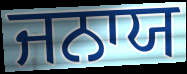
ਜਨਾਯ